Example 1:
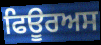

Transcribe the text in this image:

ਫਿਊਰਅਸ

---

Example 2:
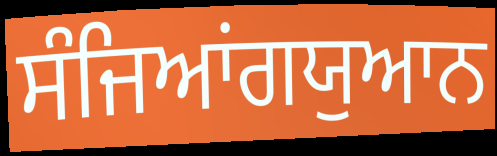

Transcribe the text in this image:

ਸੰਜਿਆਂਗਯੁਆਨ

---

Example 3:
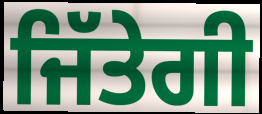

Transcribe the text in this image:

ਜਿੱਤੇਗੀ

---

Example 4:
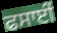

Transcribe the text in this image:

ਫਸਾਈਂ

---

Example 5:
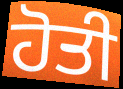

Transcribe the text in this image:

ਹੋਤੀ